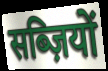
सब्ज़ियों